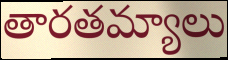
తారతమ్యాలు